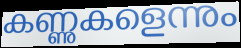
കണ്ണുകളെന്നും